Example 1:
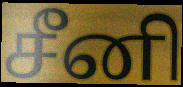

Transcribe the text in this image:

சீனி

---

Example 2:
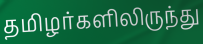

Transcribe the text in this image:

தமிழர்களிலிருந்து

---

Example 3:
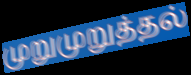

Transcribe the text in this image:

முறுமுறுத்தல்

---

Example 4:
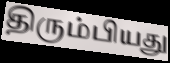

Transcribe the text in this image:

திரும்பியது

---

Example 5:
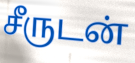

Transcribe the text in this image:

சீருடன்